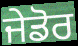
ਜੇਡੋਰ